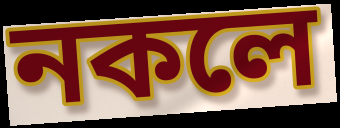
নকলে